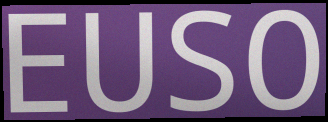
EUSO